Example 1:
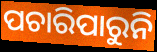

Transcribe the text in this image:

ପଚାରିପାରୁନି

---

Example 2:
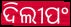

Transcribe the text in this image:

ଦିଲୀପଂ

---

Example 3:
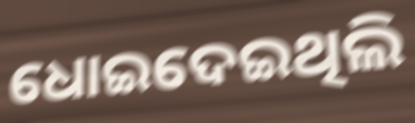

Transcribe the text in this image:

ଧୋଇଦେଇଥିଲି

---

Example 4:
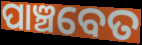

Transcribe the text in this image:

ପାଞ୍ଚବେତ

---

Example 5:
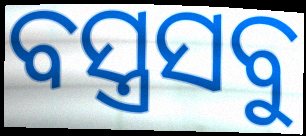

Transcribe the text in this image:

ବସ୍ତ୍ରସବୁ